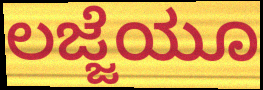
ಲಜ್ಜೆಯೂ